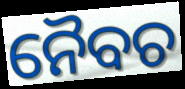
ନୈବଚ